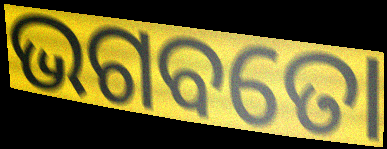
ଭଗବତୋ